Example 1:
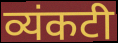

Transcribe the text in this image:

व्यंकटी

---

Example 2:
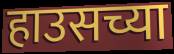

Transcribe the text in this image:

हाउसच्या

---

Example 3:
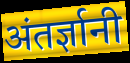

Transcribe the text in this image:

अंतर्ज्ञानी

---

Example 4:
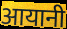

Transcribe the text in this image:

आयानी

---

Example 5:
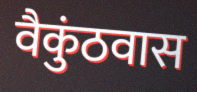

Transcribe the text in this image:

वैकुंठवास